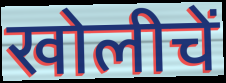
खोलीचें